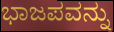
ಭಾಜಪವನ್ನು